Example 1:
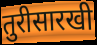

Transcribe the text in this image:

तुरीसारखी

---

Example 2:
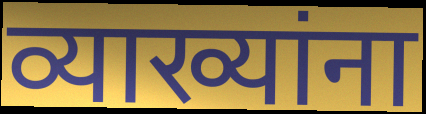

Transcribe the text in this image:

व्याख्यांना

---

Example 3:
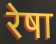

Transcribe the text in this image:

रेषा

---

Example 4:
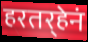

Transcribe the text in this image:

हरतर्‍हेनं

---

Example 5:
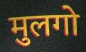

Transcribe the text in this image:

मुलगो